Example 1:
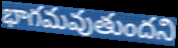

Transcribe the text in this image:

భాగమవుతుందని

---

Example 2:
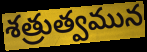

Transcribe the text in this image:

శత్రుత్వమున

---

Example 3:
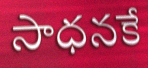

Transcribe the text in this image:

సాధనకే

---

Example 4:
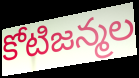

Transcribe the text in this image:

కోటిజన్మల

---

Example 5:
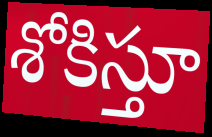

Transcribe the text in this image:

శోకిస్తూ